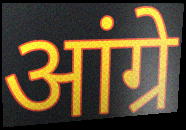
आंग्रे